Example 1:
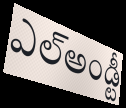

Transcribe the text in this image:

ఎల్అండ్టీ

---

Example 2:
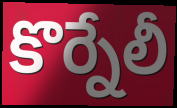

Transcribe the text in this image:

కొర్నేలీ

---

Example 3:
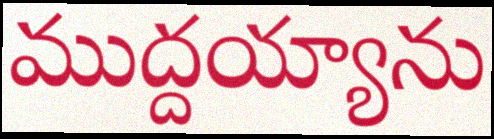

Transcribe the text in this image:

ముద్దయ్యాను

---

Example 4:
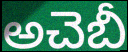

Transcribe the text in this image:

అచెబీ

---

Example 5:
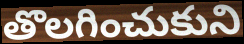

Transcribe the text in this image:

తొలగించుకుని